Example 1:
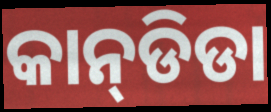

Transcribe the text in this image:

କାନ୍‌ଡିଡା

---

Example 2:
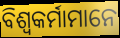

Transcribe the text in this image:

ବିଶ୍ଵକର୍ମାମାନେ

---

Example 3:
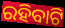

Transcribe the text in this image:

ରହିବାଟି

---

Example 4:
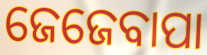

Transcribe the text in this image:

ଜେଜେବାପା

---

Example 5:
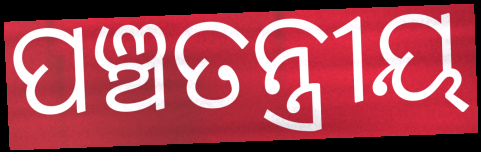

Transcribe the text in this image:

ପଞ୍ଚତନ୍ତ୍ରୀୟ